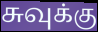
சுவுக்கு